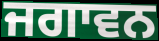
ਜਗਾਵਨ